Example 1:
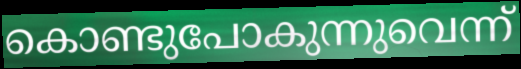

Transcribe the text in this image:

കൊണ്ടുപോകുന്നുവെന്ന്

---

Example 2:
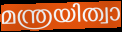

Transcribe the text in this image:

മന്ത്രയിത്വാ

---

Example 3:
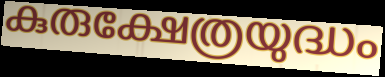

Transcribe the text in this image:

കുരുക്ഷേത്രയുദ്ധം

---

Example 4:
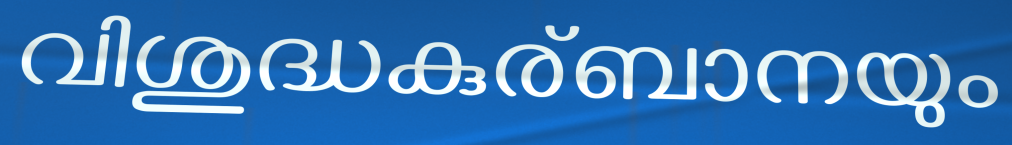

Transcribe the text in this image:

വിശുദ്ധകുര്ബാനയും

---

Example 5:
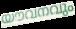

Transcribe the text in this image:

യൗവനവും